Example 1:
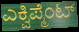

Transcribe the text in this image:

ಎಕ್ವಿಪ್ಮೆಂಟ್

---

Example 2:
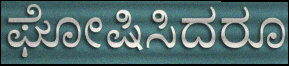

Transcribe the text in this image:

ಘೋಷಿಸಿದರೂ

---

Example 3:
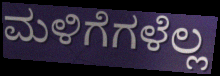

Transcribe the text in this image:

ಮಳಿಗೆಗಳೆಲ್ಲ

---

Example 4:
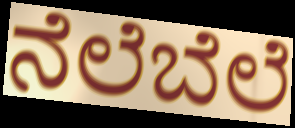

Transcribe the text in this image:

ನೆಲೆಬೆಲೆ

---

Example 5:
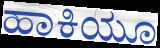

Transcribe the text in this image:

ಹಾಕಿಯೂ